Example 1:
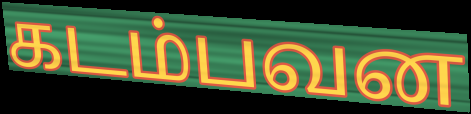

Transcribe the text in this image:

கடம்பவன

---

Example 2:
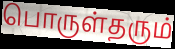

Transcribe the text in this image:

பொருள்தரும்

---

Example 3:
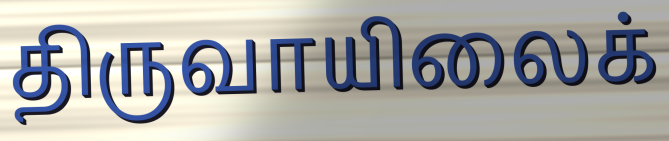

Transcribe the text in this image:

திருவாயிலைக்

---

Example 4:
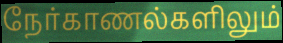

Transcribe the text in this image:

நேர்காணல்களிலும்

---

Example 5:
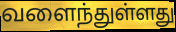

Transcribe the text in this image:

வளைந்துள்ளது